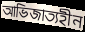
আভিজাত্যহীন